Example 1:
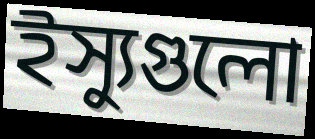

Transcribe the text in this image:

ইস্যুগুলো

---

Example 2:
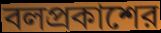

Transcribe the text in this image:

বলপ্রকাশের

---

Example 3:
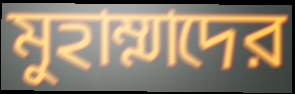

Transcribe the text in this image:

মুহাম্মাদের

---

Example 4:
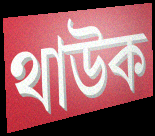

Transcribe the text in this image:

থাউক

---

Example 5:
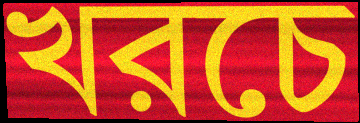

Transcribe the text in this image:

খরচে